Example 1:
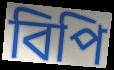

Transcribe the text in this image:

বিপি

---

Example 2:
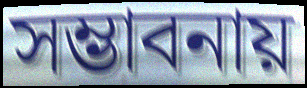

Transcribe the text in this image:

সম্ভাবনায়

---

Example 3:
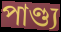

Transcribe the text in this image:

পাণ্ড্য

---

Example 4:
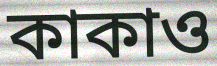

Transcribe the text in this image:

কাকাও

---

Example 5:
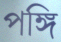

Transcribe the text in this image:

পঙ্গি